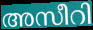
അസീറി